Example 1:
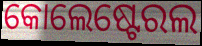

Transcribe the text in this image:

କୋଲେଷ୍ଟେରଲ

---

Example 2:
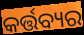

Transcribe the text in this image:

କର୍ତ୍ତବ୍ୟର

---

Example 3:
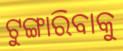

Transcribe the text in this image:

ଟୁଙ୍ଗାରିବାକୁ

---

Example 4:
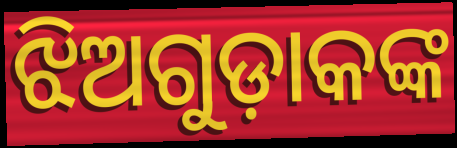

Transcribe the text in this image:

ଝିଅଗୁଡ଼ାକଙ୍କ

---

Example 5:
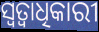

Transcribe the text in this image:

ସ୍ଵତ୍ୱାଧିକାରୀ